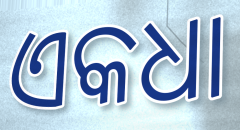
ଏକଧା